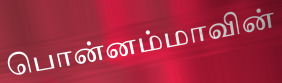
பொன்னம்மாவின்